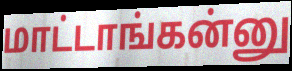
மாட்டாங்கன்னு